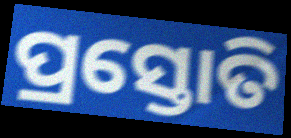
ପ୍ରସ୍ତୋତି